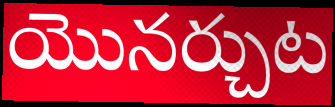
యొనర్చుట